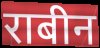
राबीन